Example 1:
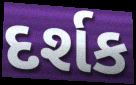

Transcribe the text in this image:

દર્શક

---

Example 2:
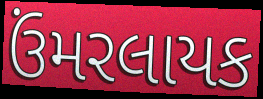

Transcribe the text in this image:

ઉંમરલાયક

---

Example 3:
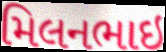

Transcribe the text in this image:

મિલનભાઇ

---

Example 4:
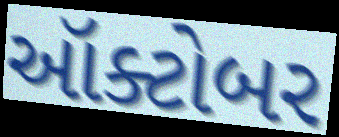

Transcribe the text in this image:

ઑક્ટોબર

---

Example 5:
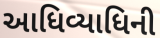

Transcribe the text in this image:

આધિવ્યાધિની